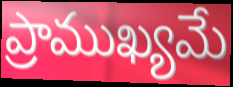
ప్రాముఖ్యమే